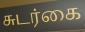
சுடர்கை